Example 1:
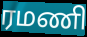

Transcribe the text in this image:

ரமணி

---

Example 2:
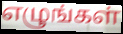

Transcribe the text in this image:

எழுங்கள்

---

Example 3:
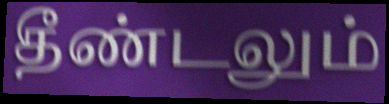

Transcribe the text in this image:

தீண்டலும்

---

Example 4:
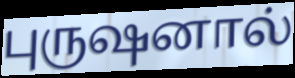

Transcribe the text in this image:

புருஷனால்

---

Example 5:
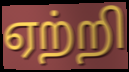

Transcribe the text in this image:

ஏற்றி